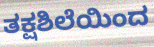
ತಕ್ಷಶಿಲೆಯಿಂದ